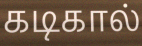
கடிகால்